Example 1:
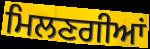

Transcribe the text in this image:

ਮਿਲਣਗੀਆਂ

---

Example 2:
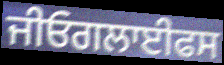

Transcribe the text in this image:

ਜੀਓਗਲਾਈਫਸ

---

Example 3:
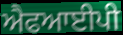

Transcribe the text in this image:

ਐਫਆਈਪੀ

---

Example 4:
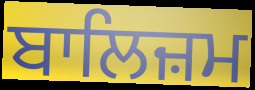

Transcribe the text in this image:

ਬਾਲਿਜ਼ਮ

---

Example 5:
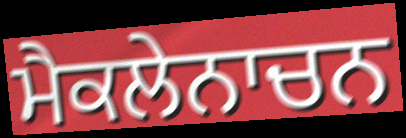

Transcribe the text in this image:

ਮੈਕਲੇਨਾਚਨ